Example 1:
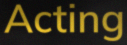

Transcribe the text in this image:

Acting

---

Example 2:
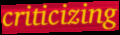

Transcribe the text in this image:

criticizing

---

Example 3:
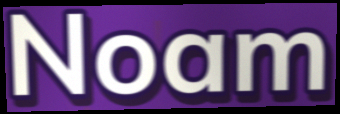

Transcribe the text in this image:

Noam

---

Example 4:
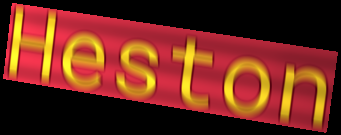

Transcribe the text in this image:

Heston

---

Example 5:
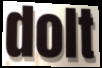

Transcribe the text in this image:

dolt